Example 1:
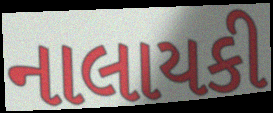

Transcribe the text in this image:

નાલાયકી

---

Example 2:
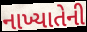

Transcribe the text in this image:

નાખ્યાતેની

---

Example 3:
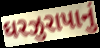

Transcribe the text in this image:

ઘરઝુરાપાનું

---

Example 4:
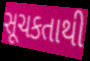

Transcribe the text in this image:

સૂચકતાથી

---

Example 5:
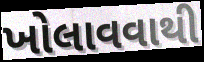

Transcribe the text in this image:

ખોલાવવાથી